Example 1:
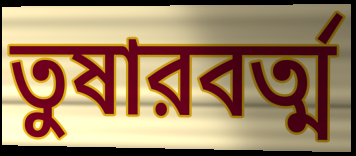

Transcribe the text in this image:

তুষারবর্ত্ম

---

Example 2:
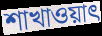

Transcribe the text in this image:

শাখাওয়াৎ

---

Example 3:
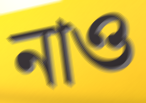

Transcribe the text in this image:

নাও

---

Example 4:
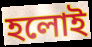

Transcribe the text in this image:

হলোই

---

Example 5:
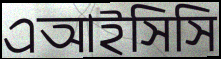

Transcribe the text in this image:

এআইসিসি